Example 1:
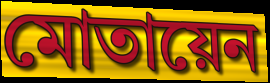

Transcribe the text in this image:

মোতায়েন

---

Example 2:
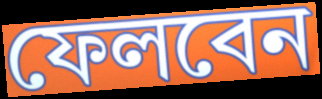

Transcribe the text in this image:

ফেলবেন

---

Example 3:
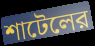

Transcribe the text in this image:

শাটেলের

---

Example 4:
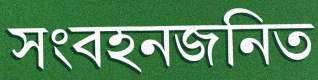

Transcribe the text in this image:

সংবহনজনিত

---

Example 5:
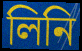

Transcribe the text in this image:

লিনি